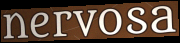
nervosa